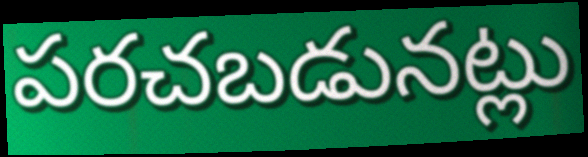
పరచబడునట్లు